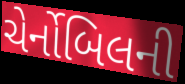
ચેર્નોબિલની